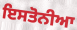
ਇਸਤੋਨੀਆ